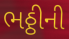
ભઠ્ઠીની